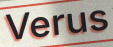
Verus